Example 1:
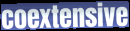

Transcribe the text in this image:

coextensive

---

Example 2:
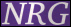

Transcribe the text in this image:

NRG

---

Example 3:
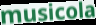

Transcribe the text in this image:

musicola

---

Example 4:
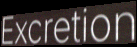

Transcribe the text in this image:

Excretion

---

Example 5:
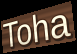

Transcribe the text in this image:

Toha